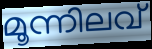
മൂന്നിലവ്